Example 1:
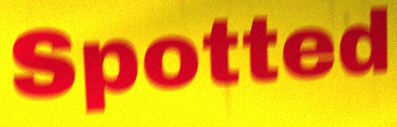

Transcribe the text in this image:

Spotted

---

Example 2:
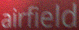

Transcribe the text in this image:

airfield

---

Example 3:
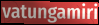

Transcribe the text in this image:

vatungamiri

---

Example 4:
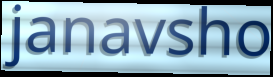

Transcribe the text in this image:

janavsho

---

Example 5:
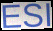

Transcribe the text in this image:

ESI